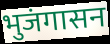
भुजंगासन